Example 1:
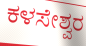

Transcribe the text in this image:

ಕಳಸೇಶ್ವರ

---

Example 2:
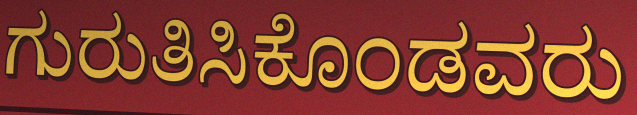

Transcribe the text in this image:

ಗುರುತಿಸಿಕೊಂಡವರು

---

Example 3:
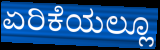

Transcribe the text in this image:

ಏರಿಕೆಯಲ್ಲೂ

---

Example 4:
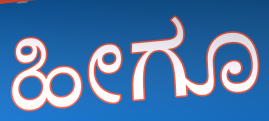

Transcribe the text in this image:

ಹೀಗೂ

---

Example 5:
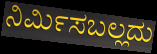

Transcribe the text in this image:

ನಿರ್ಮಿಸಬಲ್ಲದು